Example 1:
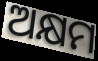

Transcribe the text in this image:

ଅକ୍ଷମ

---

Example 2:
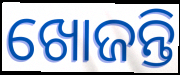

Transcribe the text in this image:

ଖୋଜନ୍ତି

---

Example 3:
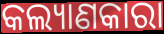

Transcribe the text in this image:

କଲ୍ୟାଣକାରା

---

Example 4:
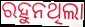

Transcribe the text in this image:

ରହୁନଥିଲା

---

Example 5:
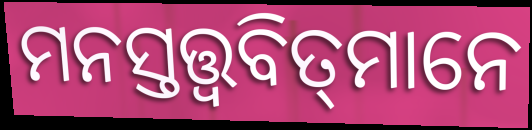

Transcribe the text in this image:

ମନସ୍ତତ୍ତ୍ୱବିତ୍‌ମାନେ